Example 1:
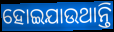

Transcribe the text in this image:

ହୋଇଯାଉଥାନ୍ତି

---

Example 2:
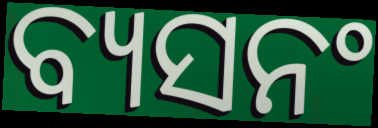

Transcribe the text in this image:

ବ୍ୟସନଂ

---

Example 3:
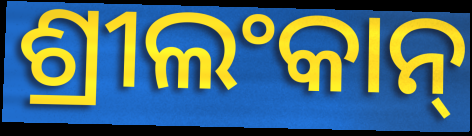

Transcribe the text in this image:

ଶ୍ରୀଲଂକାନ୍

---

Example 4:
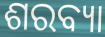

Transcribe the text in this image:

ଶରବ୍ୟା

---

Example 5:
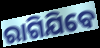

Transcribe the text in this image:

ରାଗିଯିବେ